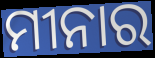
ମୀନାର